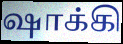
ஷாக்கி